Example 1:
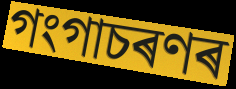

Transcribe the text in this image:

গংগাচৰণৰ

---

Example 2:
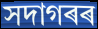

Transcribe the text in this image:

সদাগৰৰ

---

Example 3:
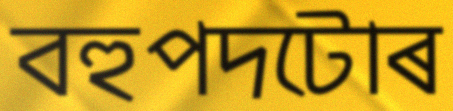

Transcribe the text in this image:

বহুপদটোৰ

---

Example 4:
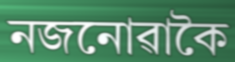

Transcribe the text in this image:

নজনোৱাকৈ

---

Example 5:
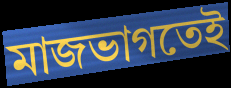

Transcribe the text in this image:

মাজভাগতেই